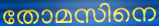
തോമസിനെ